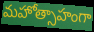
మహోత్సాహంగా